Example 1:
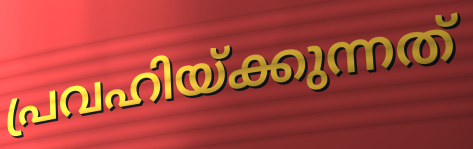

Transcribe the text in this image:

പ്രവഹിയ്ക്കുന്നത്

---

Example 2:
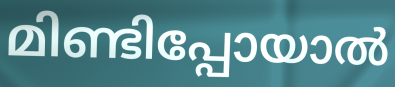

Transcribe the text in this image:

മിണ്ടിപ്പോയാൽ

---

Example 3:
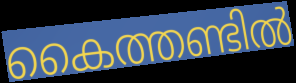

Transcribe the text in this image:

കൈത്തണ്ടിൽ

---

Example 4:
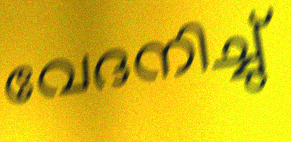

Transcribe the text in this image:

വേദനിച്ചു്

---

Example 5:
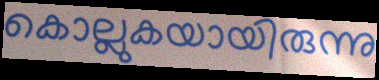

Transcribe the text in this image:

കൊല്ലുകയായിരുന്നു